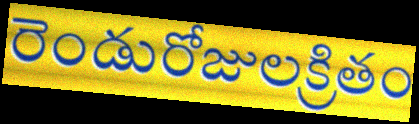
రెండురోజులక్రితం